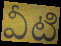
వీటి